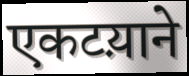
एकटय़ाने